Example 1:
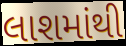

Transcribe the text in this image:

લાશમાંથી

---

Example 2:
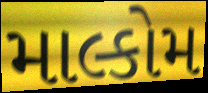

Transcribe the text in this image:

માલ્કોમ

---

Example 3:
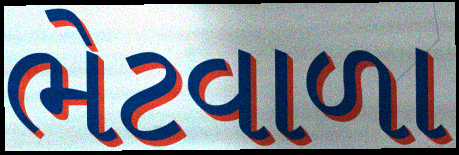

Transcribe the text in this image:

ભેટવાળા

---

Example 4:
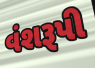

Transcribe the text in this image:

વંશરૂપી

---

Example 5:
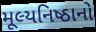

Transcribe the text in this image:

મૂલ્યનિષ્ઠાનો